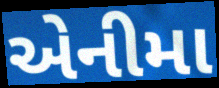
એનીમા